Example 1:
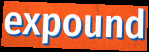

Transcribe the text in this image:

expound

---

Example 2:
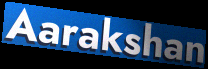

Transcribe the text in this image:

Aarakshan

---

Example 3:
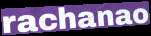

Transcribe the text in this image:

rachanao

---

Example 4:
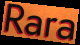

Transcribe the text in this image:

Rara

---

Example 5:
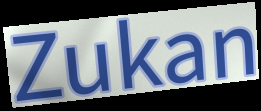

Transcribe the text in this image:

Zukan